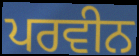
ਪਰਵੀਨ